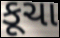
કૂચા